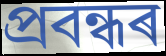
প্ৰবন্ধৰ